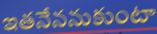
ఇతనేననుకుంటా